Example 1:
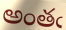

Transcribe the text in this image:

అంతఁ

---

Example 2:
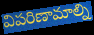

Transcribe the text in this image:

విపరిణామాల్ని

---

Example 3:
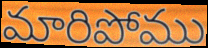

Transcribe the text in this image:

మారిపోము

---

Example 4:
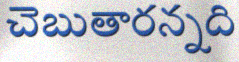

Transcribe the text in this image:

చెబుతారన్నది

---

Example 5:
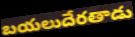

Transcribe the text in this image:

బయలుదేరతాడు